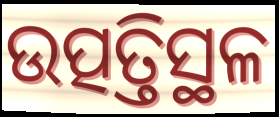
ଉତ୍ପତ୍ତିସ୍ଥଳ